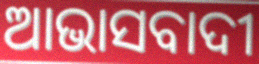
ଆଭାସବାଦୀ